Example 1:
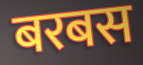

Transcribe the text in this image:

बरबस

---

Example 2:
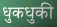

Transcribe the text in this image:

धुकधुकी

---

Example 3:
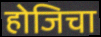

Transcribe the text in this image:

होजिचा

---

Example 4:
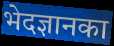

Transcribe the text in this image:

भेदज्ञानका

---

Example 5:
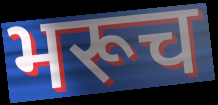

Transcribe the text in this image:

भरूच